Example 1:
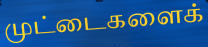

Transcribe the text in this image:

முட்டைகளைக்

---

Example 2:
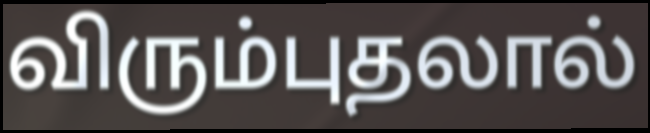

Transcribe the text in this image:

விரும்புதலால்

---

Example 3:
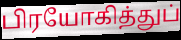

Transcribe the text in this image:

பிரயோகித்துப்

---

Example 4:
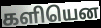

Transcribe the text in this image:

களியென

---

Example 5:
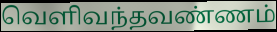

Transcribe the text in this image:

வெளிவந்தவண்ணம்